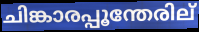
ചിങ്കാരപ്പൂന്തേരില്